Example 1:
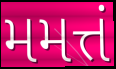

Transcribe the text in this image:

મમત્તં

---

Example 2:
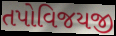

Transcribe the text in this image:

તપોવિજયજી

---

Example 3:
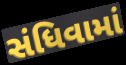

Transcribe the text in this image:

સંધિવામાં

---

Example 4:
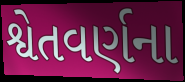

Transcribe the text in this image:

શ્વેતવર્ણના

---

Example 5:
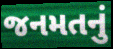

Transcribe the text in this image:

જનમતનું